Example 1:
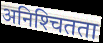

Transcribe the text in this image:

अनिश्‍चितता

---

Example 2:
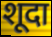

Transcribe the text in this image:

शूदा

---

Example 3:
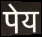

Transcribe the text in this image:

पेय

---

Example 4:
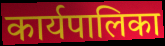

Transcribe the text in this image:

कार्यपालिका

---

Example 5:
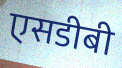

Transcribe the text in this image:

एसडीबी